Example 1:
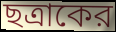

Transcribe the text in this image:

ছত্রাকের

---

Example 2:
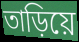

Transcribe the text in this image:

তাড়িয়ে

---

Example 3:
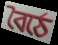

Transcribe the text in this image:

বৈঠে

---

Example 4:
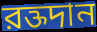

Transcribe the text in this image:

রক্তদান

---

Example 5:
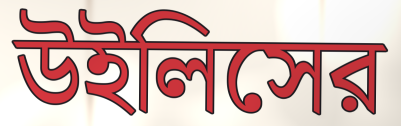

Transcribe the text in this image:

উইলিসের